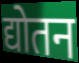
द्योतन